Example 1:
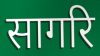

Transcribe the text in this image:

सागरि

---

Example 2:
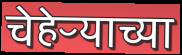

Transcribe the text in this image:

चेहेऱ्याच्या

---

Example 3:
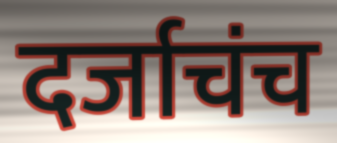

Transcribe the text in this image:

दर्जाचंच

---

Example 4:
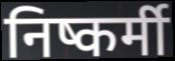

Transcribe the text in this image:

निष्कर्मी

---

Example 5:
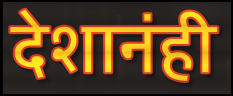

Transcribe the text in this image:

देशानंही